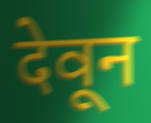
देवून